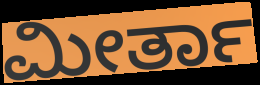
ಮೀರ್ತಾ